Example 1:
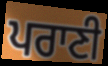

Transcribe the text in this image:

ਪਰਾਣੀ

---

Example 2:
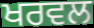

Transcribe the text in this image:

ਖਰਵਲ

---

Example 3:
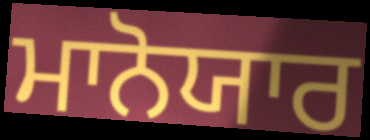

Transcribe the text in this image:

ਮਾਨੋਯਾਰ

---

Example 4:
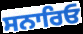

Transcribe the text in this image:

ਸਨਾਰਿਓ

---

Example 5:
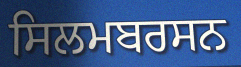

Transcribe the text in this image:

ਸਿਲਮਬਰਸਨ